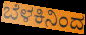
ಬೆಳಕಿನಿಂದ